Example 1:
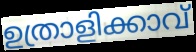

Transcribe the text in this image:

ഉത്രാളിക്കാവ്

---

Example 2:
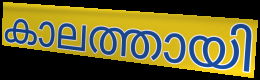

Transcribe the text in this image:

കാലത്തായി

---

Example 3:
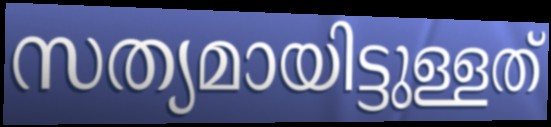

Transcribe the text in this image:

സത്യമായിട്ടുള്ളത്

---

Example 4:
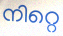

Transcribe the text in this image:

നിറ്റെ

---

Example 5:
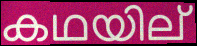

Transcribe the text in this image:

കഥയില്